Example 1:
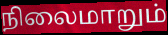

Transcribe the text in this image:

நிலைமாறும்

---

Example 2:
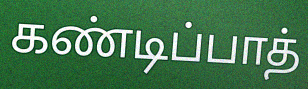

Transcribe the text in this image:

கண்டிப்பாத்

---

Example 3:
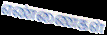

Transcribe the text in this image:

எண்ணைகள்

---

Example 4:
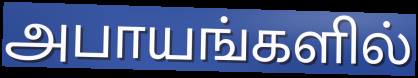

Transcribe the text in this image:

அபாயங்களில்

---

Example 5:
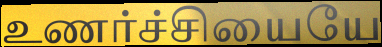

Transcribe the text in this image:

உணர்ச்சியையே